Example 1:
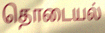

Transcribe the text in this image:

தொடையல்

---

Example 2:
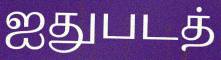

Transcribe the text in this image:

ஐதுபடத்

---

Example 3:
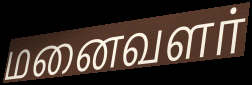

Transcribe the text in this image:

மனைவளர்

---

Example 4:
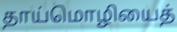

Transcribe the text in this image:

தாய்மொழியைத்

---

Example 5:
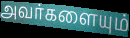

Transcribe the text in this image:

அவர்களையும்